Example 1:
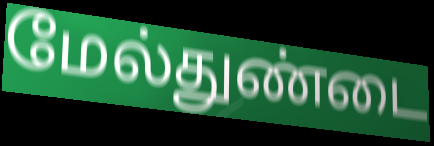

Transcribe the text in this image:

மேல்துண்டை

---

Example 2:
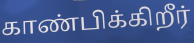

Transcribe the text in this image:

காண்பிக்கிறீர்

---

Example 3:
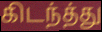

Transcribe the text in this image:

கிடந்த்து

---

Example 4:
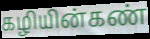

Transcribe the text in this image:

கழியின்கண்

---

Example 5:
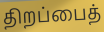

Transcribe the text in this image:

திறப்பைத்